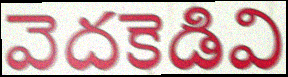
వెదకెడివి